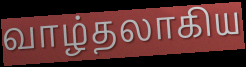
வாழ்தலாகிய